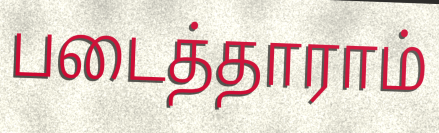
படைத்தாராம்